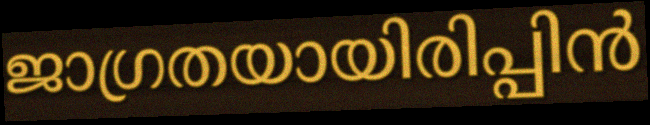
ജാഗ്രതയായിരിപ്പിൻ